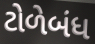
ટોળેબંધ